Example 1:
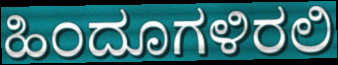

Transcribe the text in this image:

ಹಿಂದೂಗಳಿರಲಿ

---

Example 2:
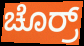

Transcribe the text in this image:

ಚೊರ್ರ್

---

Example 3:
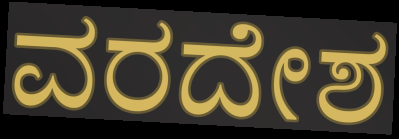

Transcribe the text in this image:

ವರದೇಶ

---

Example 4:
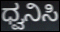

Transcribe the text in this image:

ಧ್ವನಿಸಿ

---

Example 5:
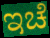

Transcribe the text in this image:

ಇಚೆ